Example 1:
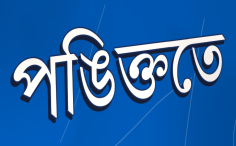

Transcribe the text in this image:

পঙিক্ততে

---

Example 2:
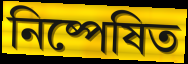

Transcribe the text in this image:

নিষ্পেষিত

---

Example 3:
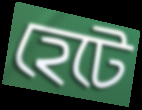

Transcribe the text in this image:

হেটে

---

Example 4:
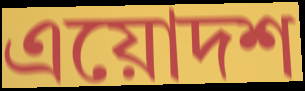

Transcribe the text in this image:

এয়োদশ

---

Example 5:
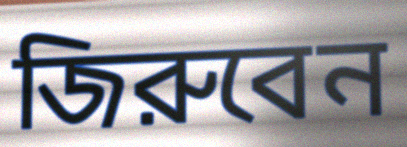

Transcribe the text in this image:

জিরুবেন